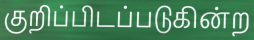
குறிப்பிடப்படுகின்ற